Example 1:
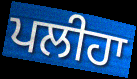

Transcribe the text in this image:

ਪਲੀਹਾ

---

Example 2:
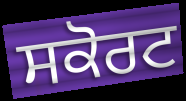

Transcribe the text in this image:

ਸਕੋਰਟ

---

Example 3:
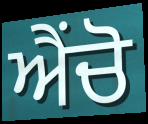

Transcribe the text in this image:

ਐਂਚੋ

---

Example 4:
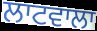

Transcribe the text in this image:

ਲਾਟਵਾਲਾ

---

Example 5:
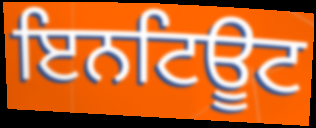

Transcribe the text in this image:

ਇਨਟਿਊਟ